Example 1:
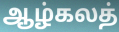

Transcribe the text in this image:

ஆழ்கலத்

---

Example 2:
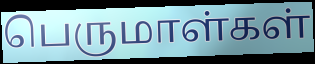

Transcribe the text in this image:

பெருமாள்கள்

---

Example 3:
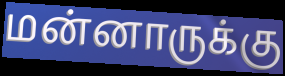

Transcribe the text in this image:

மன்னாருக்கு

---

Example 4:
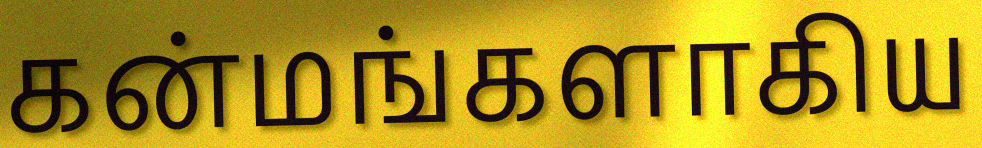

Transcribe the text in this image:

கன்மங்களாகிய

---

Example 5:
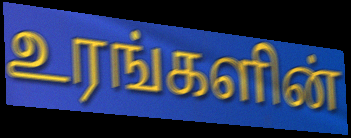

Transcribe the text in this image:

உரங்களின்